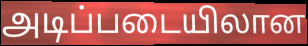
அடிப்படையிலான